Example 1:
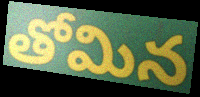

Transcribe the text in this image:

తోమిన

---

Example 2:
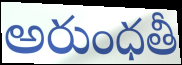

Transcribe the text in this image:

అరుంధతీ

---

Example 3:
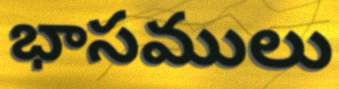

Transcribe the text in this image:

భాసములు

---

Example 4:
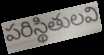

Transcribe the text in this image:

పరిస్థితులవి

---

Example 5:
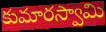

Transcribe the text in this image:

కుమారస్వామి